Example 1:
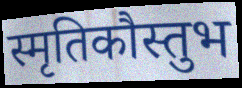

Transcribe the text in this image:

स्मृतिकौस्तुभ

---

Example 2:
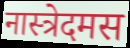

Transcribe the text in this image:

नास्त्रेदमस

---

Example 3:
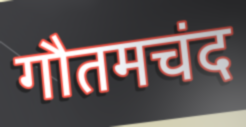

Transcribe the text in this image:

गौतमचंद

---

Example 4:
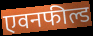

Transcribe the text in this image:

एवनफील्ड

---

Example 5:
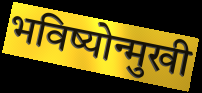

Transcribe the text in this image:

भविष्योन्मुखी